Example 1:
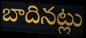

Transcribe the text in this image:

బాదినట్లు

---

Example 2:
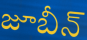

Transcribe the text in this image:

జూబీన్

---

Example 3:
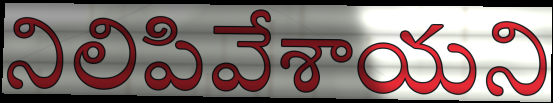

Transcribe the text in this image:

నిలిపివేశాయని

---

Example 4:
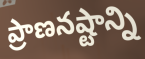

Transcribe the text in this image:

ప్రాణనష్టాన్ని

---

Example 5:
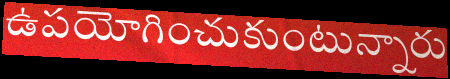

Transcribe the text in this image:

ఉపయోగించుకుంటున్నారు